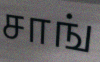
சாங்